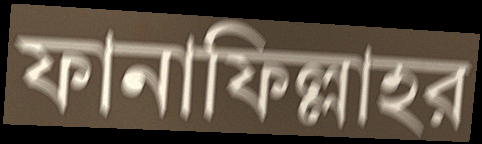
ফানাফিল্লাহর